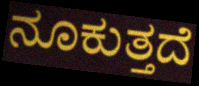
ನೂಕುತ್ತದೆ